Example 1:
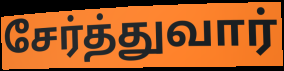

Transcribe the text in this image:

சேர்த்துவார்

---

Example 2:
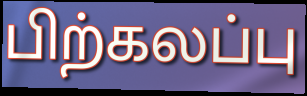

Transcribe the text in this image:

பிற்கலப்பு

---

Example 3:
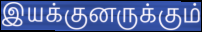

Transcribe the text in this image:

இயக்குனருக்கும்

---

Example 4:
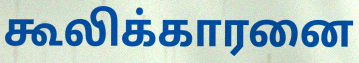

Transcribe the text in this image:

கூலிக்காரனை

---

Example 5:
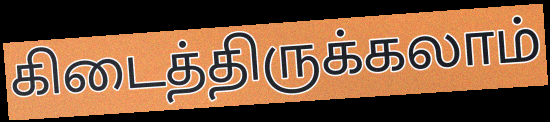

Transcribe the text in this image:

கிடைத்திருக்கலாம்